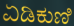
ಏಡಿಕುಣಿ